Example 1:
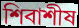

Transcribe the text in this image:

শিবাশীষ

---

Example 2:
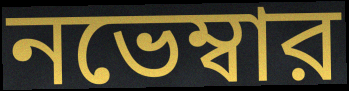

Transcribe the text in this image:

নভেম্বার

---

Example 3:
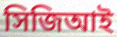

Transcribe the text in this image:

সিজিআই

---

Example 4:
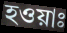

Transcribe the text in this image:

হওয়াঃ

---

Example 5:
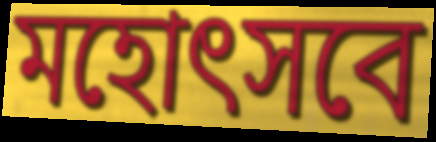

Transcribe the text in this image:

মহোৎসবে